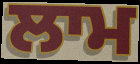
ਲਾਮ